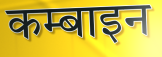
कम्बाइन